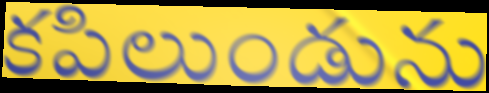
కపిలుండును